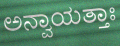
ಅನ್ವಾಯತ್ತಾಃ